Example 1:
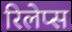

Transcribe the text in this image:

रिलेप्स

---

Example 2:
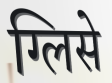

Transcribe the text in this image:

ग्लिसे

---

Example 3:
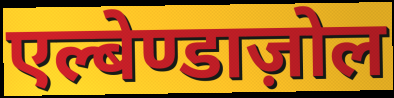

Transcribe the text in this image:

एल्बेण्डाज़ोल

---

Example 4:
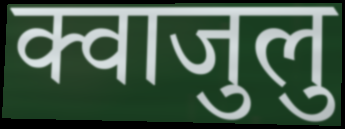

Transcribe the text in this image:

क्वाजुलु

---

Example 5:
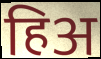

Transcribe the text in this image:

हिअ